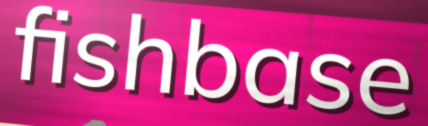
fishbase